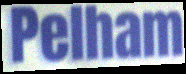
Pelham